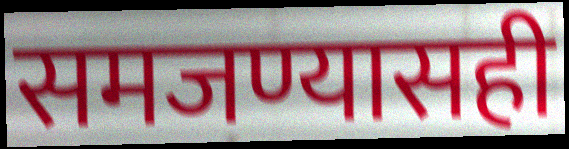
समजण्यासही